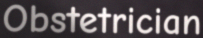
Obstetrician